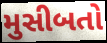
મુસીબતો